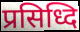
प्रसिध्दि